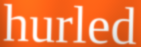
hurled